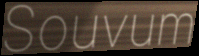
Souvum